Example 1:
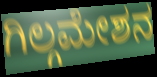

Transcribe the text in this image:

ಗಿಲ್ಗಮೇಶನ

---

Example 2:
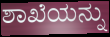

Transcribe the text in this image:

ಶಾಖೆಯನ್ನು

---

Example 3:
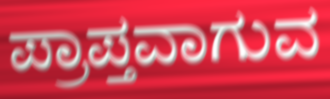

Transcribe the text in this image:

ಪ್ರಾಪ್ತವಾಗುವ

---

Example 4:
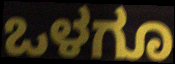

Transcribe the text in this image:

ಒಳಗೂ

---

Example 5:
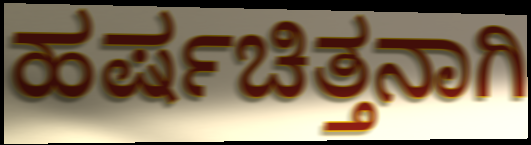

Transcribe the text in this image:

ಹರ್ಷಚಿತ್ತನಾಗಿ